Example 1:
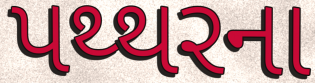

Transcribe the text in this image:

પથ્થરના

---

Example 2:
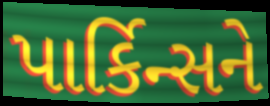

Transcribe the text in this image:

પાર્કિન્સને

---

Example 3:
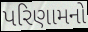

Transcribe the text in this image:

પરિણામનો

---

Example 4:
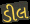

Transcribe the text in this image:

ડીલ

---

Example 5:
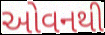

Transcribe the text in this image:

ઓવનથી